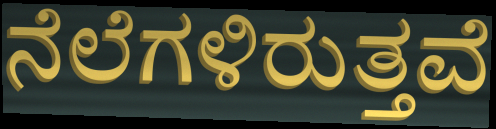
ನೆಲೆಗಳಿರುತ್ತವೆ